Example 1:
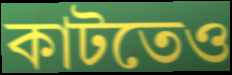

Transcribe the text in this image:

কাটতেও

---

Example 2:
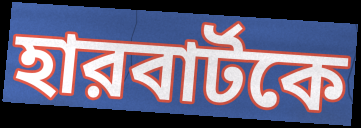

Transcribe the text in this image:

হারবার্টকে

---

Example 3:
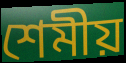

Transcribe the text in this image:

শেমীয়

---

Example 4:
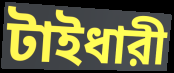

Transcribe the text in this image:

টাইধারী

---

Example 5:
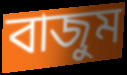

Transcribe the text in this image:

বাজুম